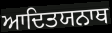
ਆਦਿਤਯਨਾਥ